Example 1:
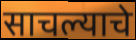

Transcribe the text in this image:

साचल्याचे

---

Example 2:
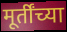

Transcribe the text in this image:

मूर्तींच्या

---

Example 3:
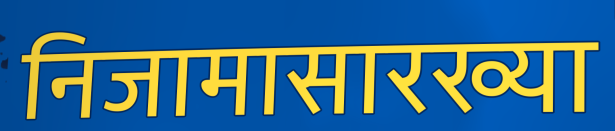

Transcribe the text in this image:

निजामासारख्या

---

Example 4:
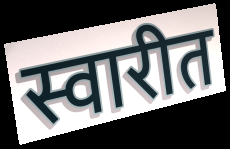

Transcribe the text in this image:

स्वारीत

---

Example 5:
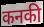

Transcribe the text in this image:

कनकी